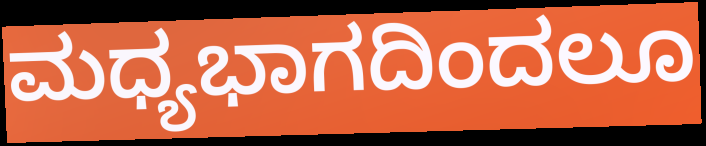
ಮಧ್ಯಭಾಗದಿಂದಲೂ